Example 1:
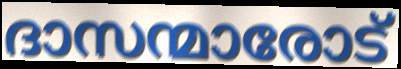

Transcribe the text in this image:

ദാസന്മാരോട്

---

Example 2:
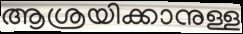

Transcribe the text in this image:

ആശ്രയിക്കാനുള്ള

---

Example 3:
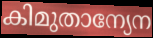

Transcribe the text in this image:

കിമുതാന്യേന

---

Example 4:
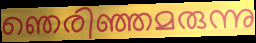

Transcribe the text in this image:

ഞെരിഞ്ഞമരുന്നു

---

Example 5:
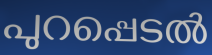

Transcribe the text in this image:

പുറപ്പെടൽ